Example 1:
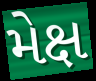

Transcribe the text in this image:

મેક્ષ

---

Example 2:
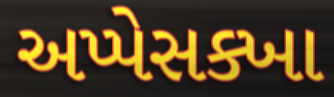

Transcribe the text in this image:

અપ્પેસક્ખા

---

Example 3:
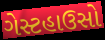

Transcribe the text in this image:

ગેસ્ટહાઉસો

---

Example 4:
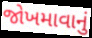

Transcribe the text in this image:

જોખમાવાનું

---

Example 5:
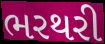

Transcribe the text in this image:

ભરથરી